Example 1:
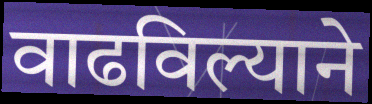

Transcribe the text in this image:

वाढविल्याने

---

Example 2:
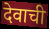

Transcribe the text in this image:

देवाची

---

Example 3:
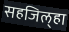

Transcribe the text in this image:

सहजिल्हा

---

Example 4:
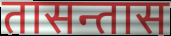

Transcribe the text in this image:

तासन्तास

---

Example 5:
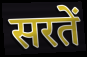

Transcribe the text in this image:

सरतें